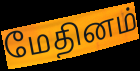
மேதினம்